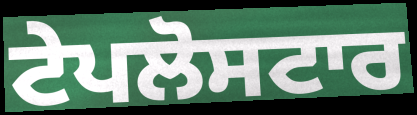
ਟੇਪਲੋਸਟਾਰ